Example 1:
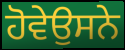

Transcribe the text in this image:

ਹੋਵੇਉਸਨੇ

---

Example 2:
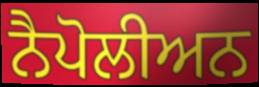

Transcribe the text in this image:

ਨੈਪੋਲੀਅਨ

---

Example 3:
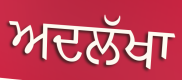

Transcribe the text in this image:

ਅਦਲੱਖਾ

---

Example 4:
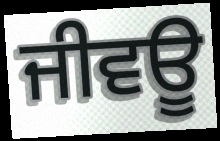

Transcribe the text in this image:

ਜੀਵਊ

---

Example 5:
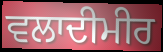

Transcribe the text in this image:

ਵਲਾਦੀਮੀਰ